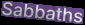
Sabbaths